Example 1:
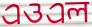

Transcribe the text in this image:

এওএল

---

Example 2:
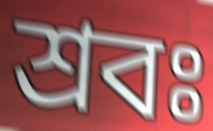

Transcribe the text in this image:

শ্রবঃ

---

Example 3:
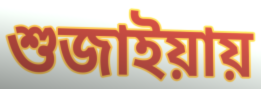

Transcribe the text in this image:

শুজাইয়ায়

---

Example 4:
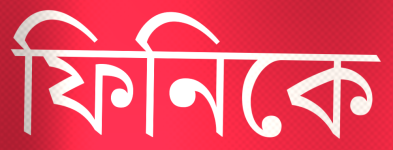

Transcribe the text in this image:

ফিনিকে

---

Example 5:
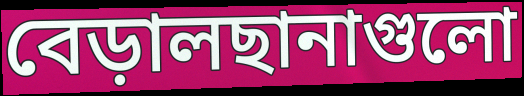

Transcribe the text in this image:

বেড়ালছানাগুলো